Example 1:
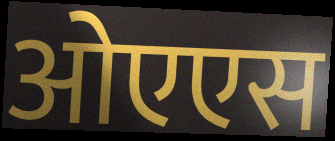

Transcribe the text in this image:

ओएएस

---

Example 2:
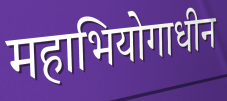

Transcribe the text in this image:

महाभियोगाधीन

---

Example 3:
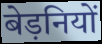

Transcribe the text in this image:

बेड़नियों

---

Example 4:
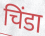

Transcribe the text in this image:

चिंडा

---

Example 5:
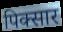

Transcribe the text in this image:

पिक्सार